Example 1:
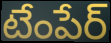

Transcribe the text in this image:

టేంపేర్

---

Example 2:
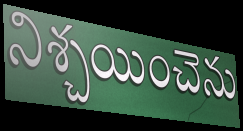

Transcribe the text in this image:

నిశ్చయించెను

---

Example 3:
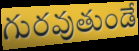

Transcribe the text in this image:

గురవుతుండే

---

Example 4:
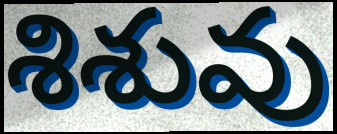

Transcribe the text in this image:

శిశువు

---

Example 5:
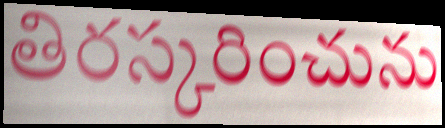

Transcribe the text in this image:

తిరస్కరించును